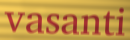
vasanti